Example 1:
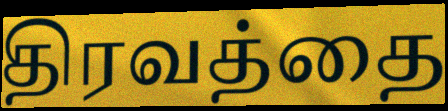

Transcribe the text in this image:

திரவத்தை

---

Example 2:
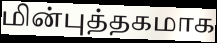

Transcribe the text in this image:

மின்புத்தகமாக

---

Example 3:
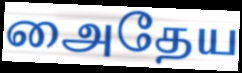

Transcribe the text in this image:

அைதேய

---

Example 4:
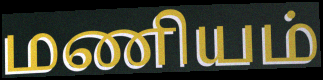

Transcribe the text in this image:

மணியம்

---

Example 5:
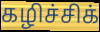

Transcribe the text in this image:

கழிச்சிக்